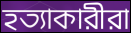
হত্যাকারীরা